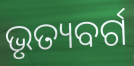
ଭୃତ୍ୟବର୍ଗ